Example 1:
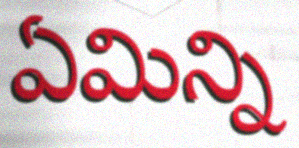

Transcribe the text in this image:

ఏమిన్ని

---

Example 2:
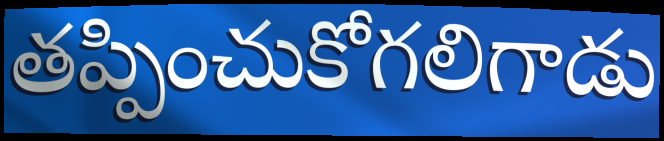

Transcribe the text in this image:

తప్పించుకోగలిగాడు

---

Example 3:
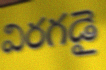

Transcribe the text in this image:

విరగడై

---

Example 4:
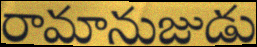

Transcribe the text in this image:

రామానుజుడు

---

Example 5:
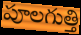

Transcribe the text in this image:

పూలగుత్తి